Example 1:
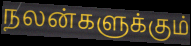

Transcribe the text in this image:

நலன்களுக்கும்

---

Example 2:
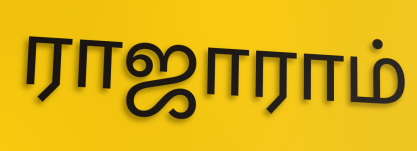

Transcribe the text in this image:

ராஜாராம்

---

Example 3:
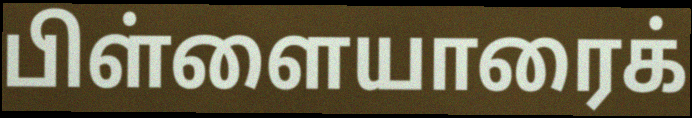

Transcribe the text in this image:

பிள்ளையாரைக்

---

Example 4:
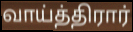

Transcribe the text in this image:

வாய்த்திரார்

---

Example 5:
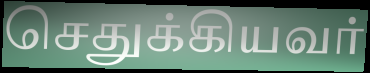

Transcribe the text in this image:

செதுக்கியவர்